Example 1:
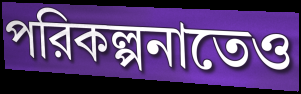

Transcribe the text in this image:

পরিকল্পনাতেও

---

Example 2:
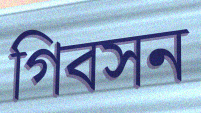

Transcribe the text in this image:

গিবসন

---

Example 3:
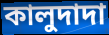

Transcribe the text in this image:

কালুদাদা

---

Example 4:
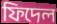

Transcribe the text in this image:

ফিদেল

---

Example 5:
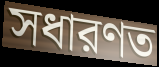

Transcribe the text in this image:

সধারণত